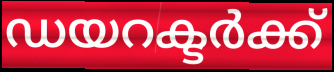
ഡയറക്ടർക്ക്